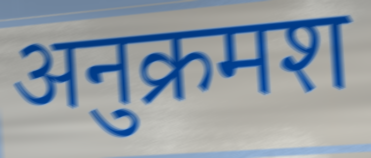
अनुक्रमश